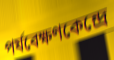
পর্যবেক্ষণকেন্দ্রে